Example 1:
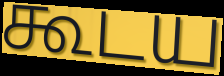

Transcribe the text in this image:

கூடய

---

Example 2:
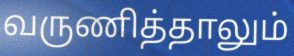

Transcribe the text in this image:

வருணித்தாலும்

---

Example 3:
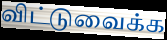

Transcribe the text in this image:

விட்டுவைக்க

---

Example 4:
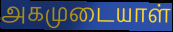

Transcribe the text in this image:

அகமுடையாள்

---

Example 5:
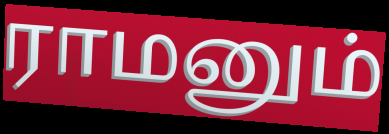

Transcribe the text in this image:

ராமனும்